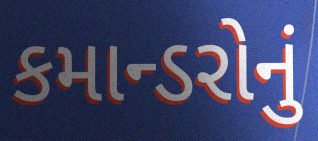
કમાન્ડરોનું